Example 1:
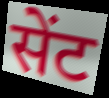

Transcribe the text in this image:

सेंट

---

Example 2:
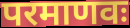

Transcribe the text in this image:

परमाणवः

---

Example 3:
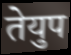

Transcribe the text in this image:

तेयुप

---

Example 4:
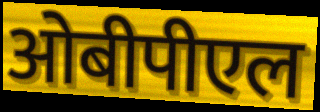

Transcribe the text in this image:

ओबीपीएल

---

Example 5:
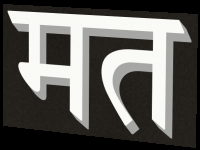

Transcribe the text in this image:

मत